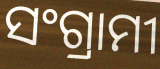
ସଂଗ୍ରାମୀ